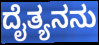
ದೈತ್ಯನನು